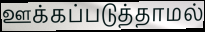
ஊக்கப்படுத்தாமல்